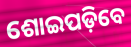
ଶୋଇପଡ଼ିବେ